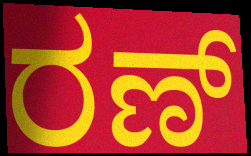
ರಣ್